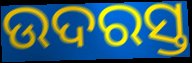
ଉଦରସ୍ତ